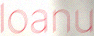
loanu